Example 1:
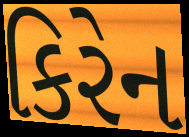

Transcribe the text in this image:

કિરેન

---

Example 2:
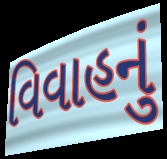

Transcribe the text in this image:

વિવાહનું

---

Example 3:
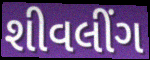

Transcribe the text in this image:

શીવલીંગ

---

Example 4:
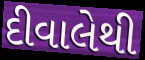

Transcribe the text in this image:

દીવાલેથી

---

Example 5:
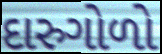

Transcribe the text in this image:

દારુગોળો